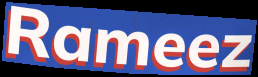
Rameez